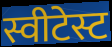
स्वीटेस्ट